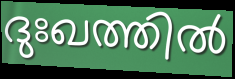
ദുഃഖത്തിൽ